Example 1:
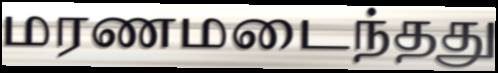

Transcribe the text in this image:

மரணமடைந்தது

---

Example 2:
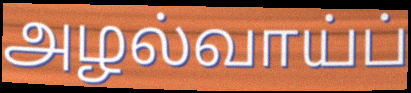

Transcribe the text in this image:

அழல்வாய்ப்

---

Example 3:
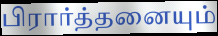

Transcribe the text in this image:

பிரார்த்தனையும்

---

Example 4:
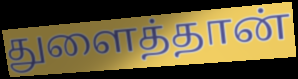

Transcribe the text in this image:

துளைத்தான்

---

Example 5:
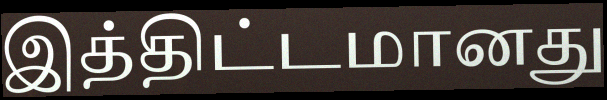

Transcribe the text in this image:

இத்திட்டமானது